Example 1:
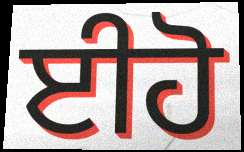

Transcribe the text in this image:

ਈਹੋ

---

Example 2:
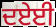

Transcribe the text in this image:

ਦਏਈ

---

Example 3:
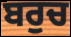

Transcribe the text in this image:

ਬਰੁਚ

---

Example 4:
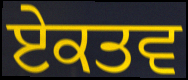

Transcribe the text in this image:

ਏਕਤਵ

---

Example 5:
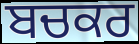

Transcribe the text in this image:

ਬਚਕਰ